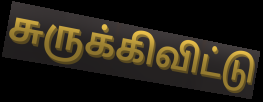
சுருக்கிவிட்டு